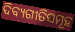
ଦିବ୍ୟଗୀତିସମୂହ